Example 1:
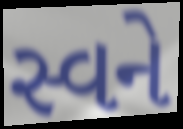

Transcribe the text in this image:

સ્વને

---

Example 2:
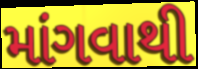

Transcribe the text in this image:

માંગવાથી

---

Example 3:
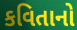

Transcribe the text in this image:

કવિતાનો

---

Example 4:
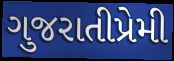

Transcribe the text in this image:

ગુજરાતીપ્રેમી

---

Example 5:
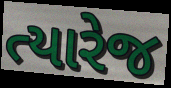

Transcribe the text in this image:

ત્યારેજ